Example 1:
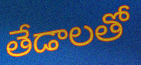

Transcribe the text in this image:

తేడాలతో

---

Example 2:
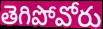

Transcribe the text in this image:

తెగిపోవోరు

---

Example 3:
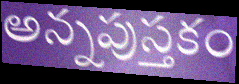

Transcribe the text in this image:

అన్నపుస్తకం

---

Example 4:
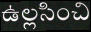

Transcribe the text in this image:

ఉల్లసించి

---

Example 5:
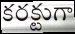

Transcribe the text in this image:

కరక్టుగా